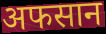
अफसान